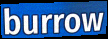
burrow